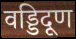
वड्डिदूण